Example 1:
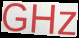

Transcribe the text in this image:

GHz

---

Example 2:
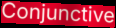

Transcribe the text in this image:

Conjunctive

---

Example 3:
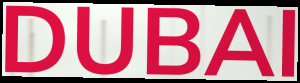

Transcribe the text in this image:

DUBAI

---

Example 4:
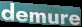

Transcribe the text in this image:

demure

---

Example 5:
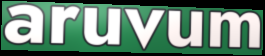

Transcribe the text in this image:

aruvum